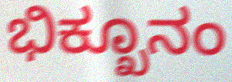
ಭಿಕ್ಖೂನಂ